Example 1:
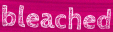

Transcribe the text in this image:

bleached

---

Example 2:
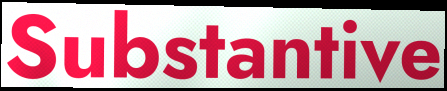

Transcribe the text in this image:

Substantive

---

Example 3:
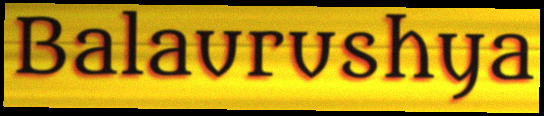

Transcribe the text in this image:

Balaurushya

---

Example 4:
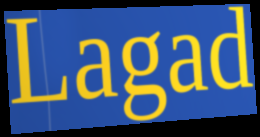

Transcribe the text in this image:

Lagad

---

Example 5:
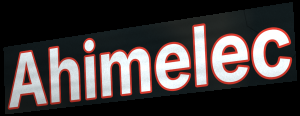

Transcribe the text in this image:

Ahimelec